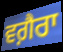
ਵਗ਼ੈਰਾ